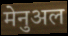
मेनुअल